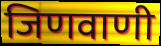
जिणवाणी